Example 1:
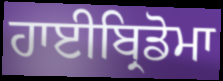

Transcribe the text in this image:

ਹਾਈਬ੍ਰਿਡੋਮਾ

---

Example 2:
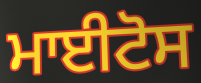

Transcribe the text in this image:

ਮਾਈਟੋਸ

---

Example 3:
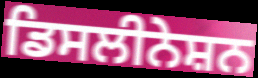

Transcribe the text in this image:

ਡਿਸਲੀਨੇਸ਼ਨ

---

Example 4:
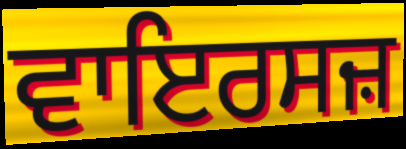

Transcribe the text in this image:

ਵਾਇਰਸਜ਼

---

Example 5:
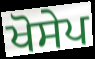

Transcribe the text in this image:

ਖੋਸੇਪ